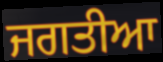
ਜਗਤੀਆ